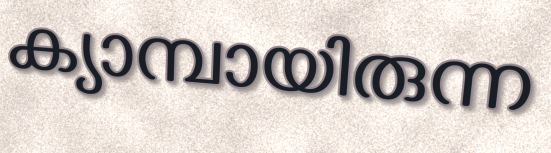
ക്യാമ്പായിരുന്ന